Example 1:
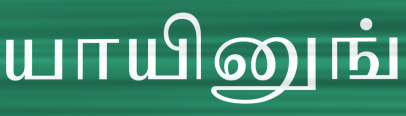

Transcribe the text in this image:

யாயினுங்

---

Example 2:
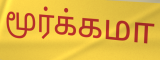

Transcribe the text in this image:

மூர்க்கமா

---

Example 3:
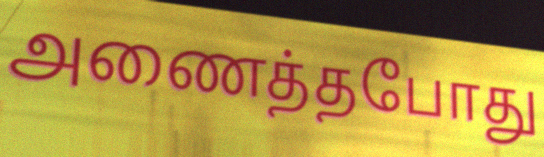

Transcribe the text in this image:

அணைத்தபோது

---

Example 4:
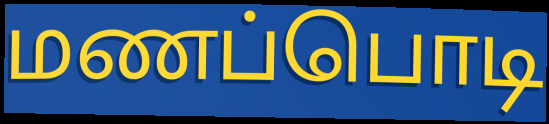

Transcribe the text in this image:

மணப்பொடி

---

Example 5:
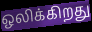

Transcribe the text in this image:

ஒலிக்கிறது